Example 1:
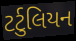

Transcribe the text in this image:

ટર્ટુલિયન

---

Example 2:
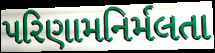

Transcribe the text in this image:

પરિણામનિર્મલતા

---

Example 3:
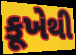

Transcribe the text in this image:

કૂખેથી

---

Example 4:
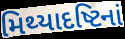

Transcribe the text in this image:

મિથ્યાદષ્ટિનાં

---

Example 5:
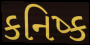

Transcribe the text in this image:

કનિષ્ક